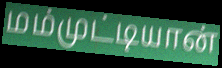
மம்முட்டியான்